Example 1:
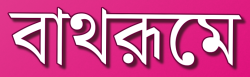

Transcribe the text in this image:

বাথরূমে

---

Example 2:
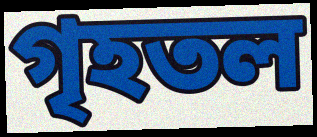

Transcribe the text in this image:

গৃহতল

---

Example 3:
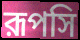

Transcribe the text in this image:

রূপসি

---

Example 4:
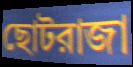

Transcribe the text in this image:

ছোটরাজা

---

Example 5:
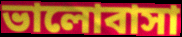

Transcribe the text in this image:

ভালোবাসা